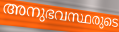
അനുഭവസ്ഥരുടെ